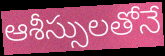
ఆశీస్సులతోనే